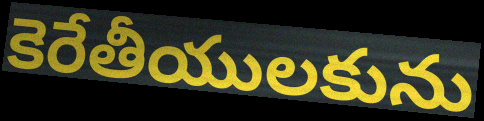
కెరేతీయులకును